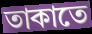
তাকাতে